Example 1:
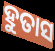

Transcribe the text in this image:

ହୁତାସ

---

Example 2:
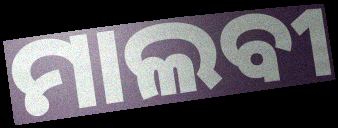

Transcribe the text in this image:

ମାଲବୀ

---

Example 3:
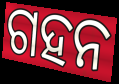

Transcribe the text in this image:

ଗହନ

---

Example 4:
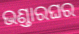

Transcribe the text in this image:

ଭଣ୍ଡାରଘର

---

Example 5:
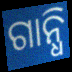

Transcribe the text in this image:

ଗାନ୍ଧି